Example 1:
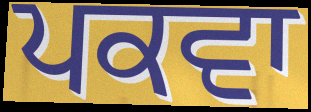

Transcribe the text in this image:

ਪਕਵਾ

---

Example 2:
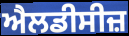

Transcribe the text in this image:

ਐਲਡੀਸੀਜ਼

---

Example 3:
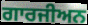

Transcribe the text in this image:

ਗਾਰਜੀਅਨ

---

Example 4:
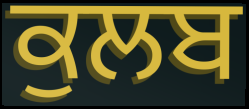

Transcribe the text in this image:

ਕੁਲਬ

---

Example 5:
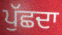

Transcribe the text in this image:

ਪੁੱਛਦਾ